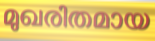
മുഖരിതമായ